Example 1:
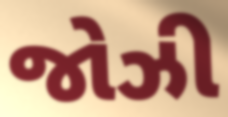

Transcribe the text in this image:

જોઝી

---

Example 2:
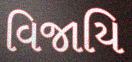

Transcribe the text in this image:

વિજાયિ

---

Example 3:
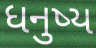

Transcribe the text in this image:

ધનુષ્ય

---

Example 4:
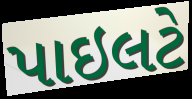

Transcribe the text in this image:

પાઇલટે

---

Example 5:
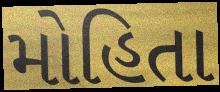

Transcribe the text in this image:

મોહિતા